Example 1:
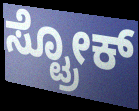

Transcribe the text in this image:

ಸ್ಟ್ರೋಕ್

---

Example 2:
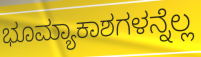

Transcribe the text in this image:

ಭೂಮ್ಯಾಕಾಶಗಳನ್ನೆಲ್ಲ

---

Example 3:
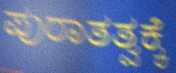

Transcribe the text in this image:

ಪುರಾತತ್ವಕ್ಕೆ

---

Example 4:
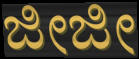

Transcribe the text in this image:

ಜೀಜೀ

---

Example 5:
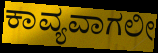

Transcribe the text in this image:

ಕಾವ್ಯವಾಗಲೀ